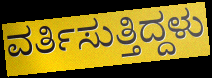
ವರ್ತಿಸುತ್ತಿದ್ದಳು